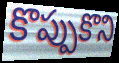
కొప్పుకొని